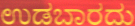
ಉಡಬಾರದು